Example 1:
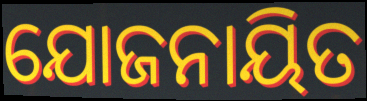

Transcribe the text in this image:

ଯୋଜନାୟିତ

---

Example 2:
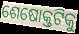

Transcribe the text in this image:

ଶେଷୋକ୍ତଟିକୁ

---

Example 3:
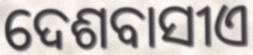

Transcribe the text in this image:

ଦେଶବାସୀଏ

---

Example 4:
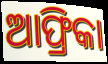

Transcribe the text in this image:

ଆଫ୍ରିକା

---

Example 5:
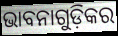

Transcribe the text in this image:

ଭାବନାଗୁଡ଼ିକର